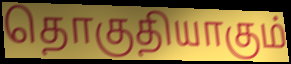
தொகுதியாகும்